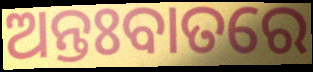
ଅନ୍ତଃବାତରେ